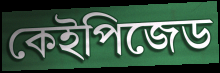
কেইপিজেড